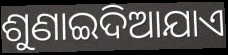
ଶୁଣାଇଦିଆଯାଏ